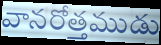
వానరోత్తముడు